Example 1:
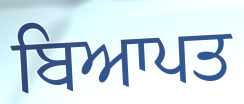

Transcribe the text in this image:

ਬਿਆਪਤ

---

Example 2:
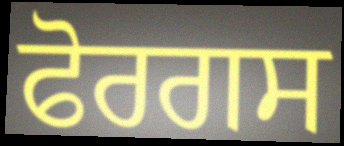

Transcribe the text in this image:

ਫੋਰਗਸ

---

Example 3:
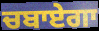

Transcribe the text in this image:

ਚਬਾਏਗਾ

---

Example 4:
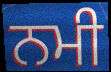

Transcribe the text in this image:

ਨਮੀ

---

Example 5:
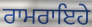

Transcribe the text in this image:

ਰਾਮਰਾਇਹੇ